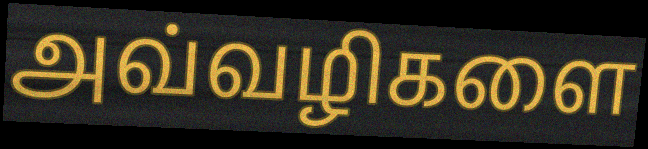
அவ்வழிகளை